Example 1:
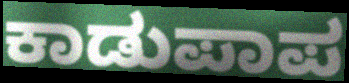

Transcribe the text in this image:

ಕಾಡುಪಾಪ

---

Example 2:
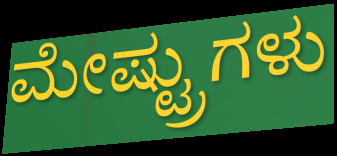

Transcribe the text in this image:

ಮೇಷ್ಟ್ರುಗಳು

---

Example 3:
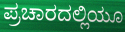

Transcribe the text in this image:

ಪ್ರಚಾರದಲ್ಲಿಯೂ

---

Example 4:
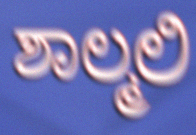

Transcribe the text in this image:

ಶಾಲ್ಮಲಿ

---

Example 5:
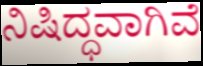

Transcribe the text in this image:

ನಿಷಿದ್ಧವಾಗಿವೆ